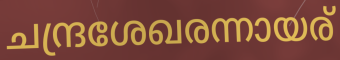
ചന്ദ്രശേഖരന്നായര്